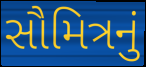
સૌમિત્રનું